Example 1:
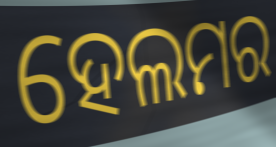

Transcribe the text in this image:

ହେଲମର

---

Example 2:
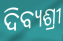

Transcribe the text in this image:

ଦିବ୍ୟଶ୍ରୀ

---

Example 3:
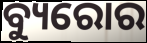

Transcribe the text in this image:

ବ୍ୟୁରୋର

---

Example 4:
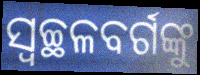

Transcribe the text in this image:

ସ୍ବଚ୍ଛଳବର୍ଗଙ୍କୁ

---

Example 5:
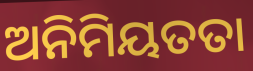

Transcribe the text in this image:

ଅନିମିୟତତା